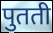
पुतती